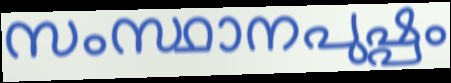
സംസ്ഥാനപുഷ്പം